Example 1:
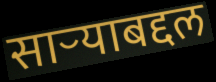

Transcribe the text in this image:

साऱ्याबद्दल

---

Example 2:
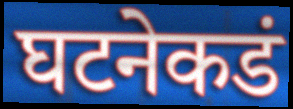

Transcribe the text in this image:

घटनेकडं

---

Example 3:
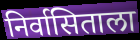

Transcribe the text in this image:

निर्वासिताला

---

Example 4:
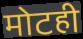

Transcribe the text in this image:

मोटही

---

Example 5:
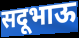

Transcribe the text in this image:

सदूभाऊ